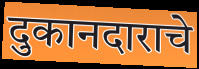
दुकानदाराचे